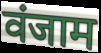
वंजाम